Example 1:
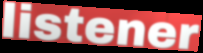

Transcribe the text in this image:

listener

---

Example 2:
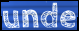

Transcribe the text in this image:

unde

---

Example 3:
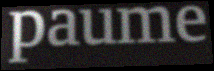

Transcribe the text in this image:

paume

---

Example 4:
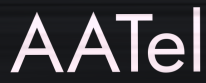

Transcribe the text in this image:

AATel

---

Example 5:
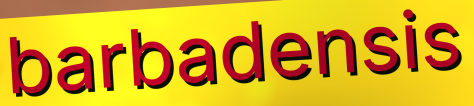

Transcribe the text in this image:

barbadensis